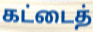
கட்டைத்